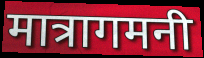
मात्रागमनी